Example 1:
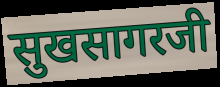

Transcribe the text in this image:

सुखसागरजी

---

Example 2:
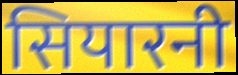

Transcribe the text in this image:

सियारनी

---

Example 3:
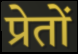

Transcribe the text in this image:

प्रेतों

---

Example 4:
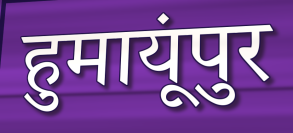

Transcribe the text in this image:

हुमायूंपुर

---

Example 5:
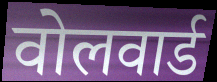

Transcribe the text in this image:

वोलवार्ड